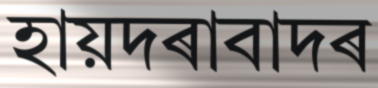
হায়দৰাবাদৰ